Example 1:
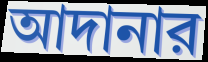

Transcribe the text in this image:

আদানার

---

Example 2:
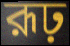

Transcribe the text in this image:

রূঢ়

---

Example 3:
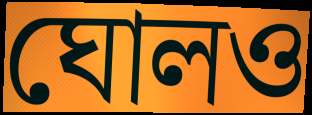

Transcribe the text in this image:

ঘোলও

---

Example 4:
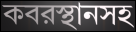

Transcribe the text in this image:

কবরস্থানসহ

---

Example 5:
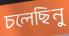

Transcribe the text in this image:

চলেছিনু